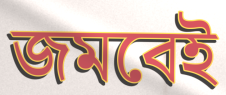
জমবেই